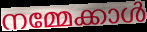
നമ്മേക്കാൾ